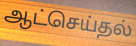
ஆட்செய்தல்